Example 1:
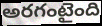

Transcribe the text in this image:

అరగంటైంది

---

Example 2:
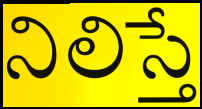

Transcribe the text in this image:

నిలిస్తే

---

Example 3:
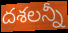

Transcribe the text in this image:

దశలన్నీ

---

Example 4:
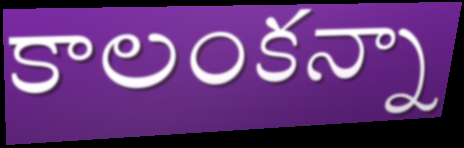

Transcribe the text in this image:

కాలంకన్నా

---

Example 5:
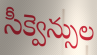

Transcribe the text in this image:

సీక్వెన్సుల